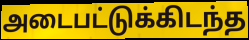
அடைபட்டுக்கிடந்த